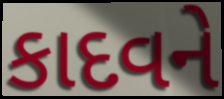
કાદવને